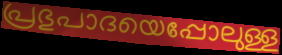
പ്രഭുപാദയെപ്പോലുള്ള